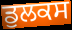
ਡੁਲਕਸ